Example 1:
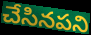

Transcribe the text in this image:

చేసినపని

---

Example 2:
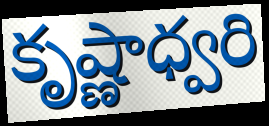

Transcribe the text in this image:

కృష్ణాధ్వరి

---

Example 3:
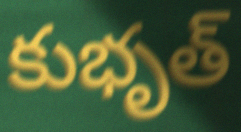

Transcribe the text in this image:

కుభృత్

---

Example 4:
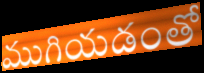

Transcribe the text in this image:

ముగియడంతో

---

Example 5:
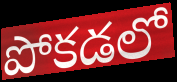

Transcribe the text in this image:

పోకడలో